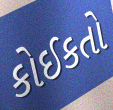
કોઈકતો